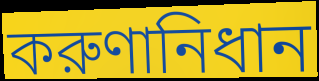
করুণানিধান